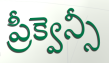
ప్రీక్వెన్సీ